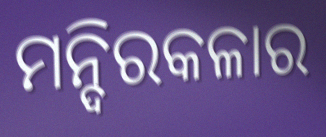
ମନ୍ଦିରକଳାର